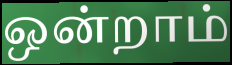
ஒன்றாம்